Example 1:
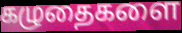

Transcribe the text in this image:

கழுதைகளை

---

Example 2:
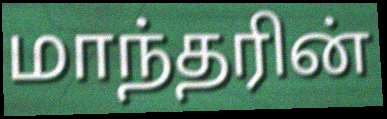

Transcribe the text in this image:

மாந்தரின்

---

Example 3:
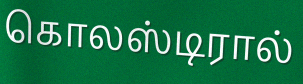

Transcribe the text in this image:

கொலஸ்டிரால்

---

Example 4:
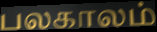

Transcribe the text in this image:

பலகாலம்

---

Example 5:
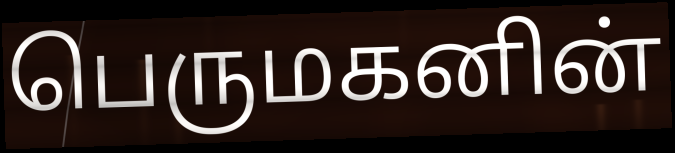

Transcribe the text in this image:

பெருமகனின்